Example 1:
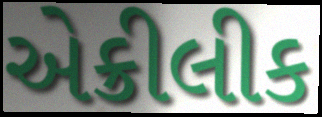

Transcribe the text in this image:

એક્રીલીક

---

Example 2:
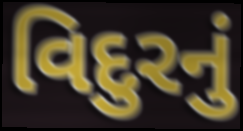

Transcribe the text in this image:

વિદુરનું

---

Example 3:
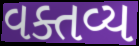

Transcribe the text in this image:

વક્તવ્ય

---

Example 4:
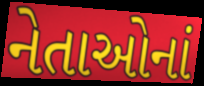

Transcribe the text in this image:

નેતાઓનાં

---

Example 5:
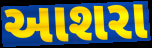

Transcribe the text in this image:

આશરા